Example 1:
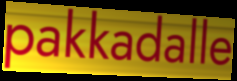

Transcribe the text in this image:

pakkadalle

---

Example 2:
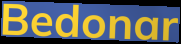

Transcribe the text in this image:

Bedonar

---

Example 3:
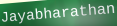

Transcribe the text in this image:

Jayabharathan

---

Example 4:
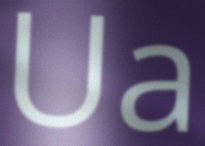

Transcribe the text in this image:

Ua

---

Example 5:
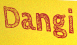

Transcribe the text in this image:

Dangi